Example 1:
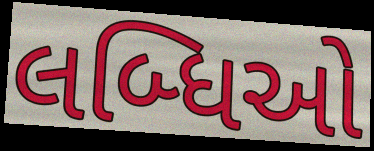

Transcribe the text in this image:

લબ્ધિઓ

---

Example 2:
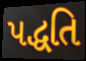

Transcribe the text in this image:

પદ્ધતિ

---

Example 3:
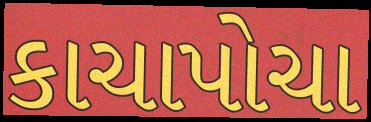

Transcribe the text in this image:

કાચાપોચા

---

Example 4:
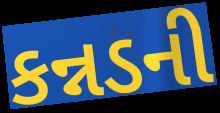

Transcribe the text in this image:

કન્નડની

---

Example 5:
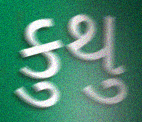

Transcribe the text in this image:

કુથુ